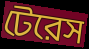
টেরেস